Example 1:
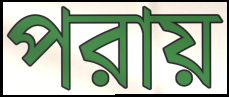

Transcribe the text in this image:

পরায়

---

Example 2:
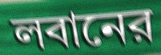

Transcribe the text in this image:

লবানের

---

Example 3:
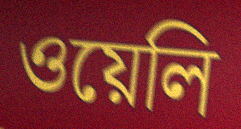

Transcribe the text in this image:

ওয়েলি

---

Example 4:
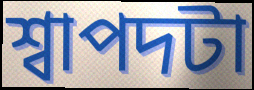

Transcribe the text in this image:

শ্বাপদটা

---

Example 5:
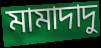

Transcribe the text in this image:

মামাদাদু